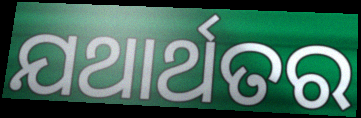
ଯଥାର୍ଥତର